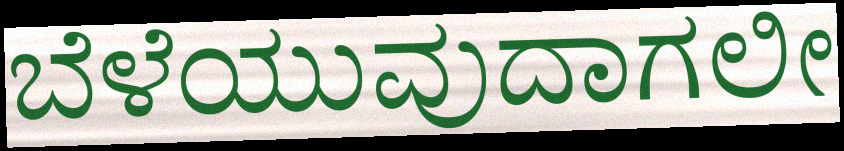
ಬೆಳೆಯುವುದಾಗಲೀ